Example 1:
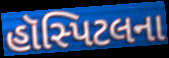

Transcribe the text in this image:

હૉસ્પિટલના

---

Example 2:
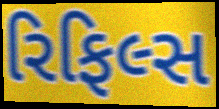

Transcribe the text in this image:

રિફિલ્સ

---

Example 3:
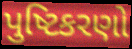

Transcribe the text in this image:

પુષ્ટિકરણો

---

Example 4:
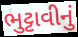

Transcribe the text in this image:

ભુટ્ટાવીનું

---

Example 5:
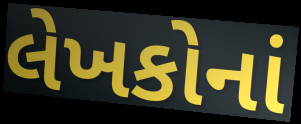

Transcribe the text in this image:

લેખકોનાં